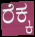
ರೆಕ್ಕ